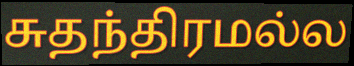
சுதந்திரமல்ல